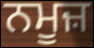
ਨਮੂਜ਼